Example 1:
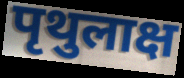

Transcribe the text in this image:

पृथुलाक्ष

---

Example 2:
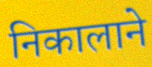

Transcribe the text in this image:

निकालाने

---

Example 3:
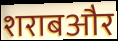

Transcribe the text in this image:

शराबऔर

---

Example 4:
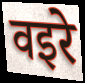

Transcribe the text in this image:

वइरे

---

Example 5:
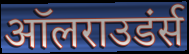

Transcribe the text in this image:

ऑलराउडंर्स